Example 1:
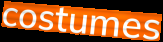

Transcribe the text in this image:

costumes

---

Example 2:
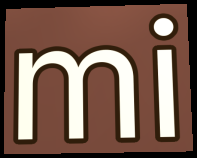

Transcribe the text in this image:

mi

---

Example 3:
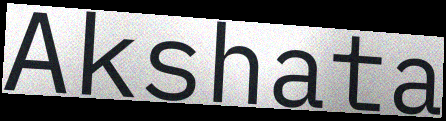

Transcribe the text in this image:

Akshata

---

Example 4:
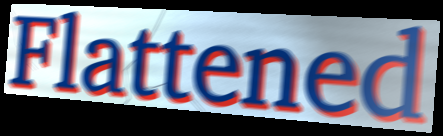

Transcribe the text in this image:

Flattened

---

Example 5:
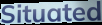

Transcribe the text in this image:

Situated